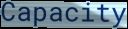
Capacity